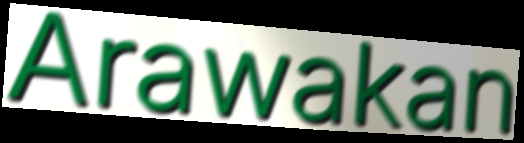
Arawakan